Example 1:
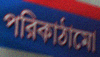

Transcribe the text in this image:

পরিকাঠামো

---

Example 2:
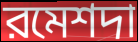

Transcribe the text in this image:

রমেশদা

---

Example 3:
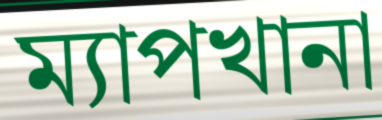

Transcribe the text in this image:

ম্যাপখানা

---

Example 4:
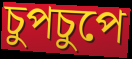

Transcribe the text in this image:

চুপচুপে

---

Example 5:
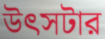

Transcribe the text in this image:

উৎসটার